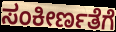
ಸಂಕೀರ್ಣತೆಗೆ